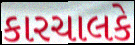
કારચાલકે